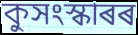
কুসংস্কাৰৰ